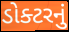
ડોક્ટરનું